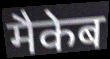
मैकेब